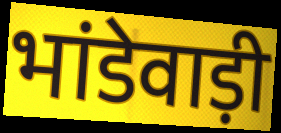
भांडेवाड़ी